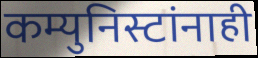
कम्युनिस्टांनाही